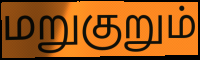
மறுகுறும்